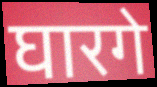
घारगे